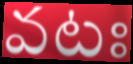
వటః